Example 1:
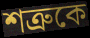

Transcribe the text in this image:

শত্রুকে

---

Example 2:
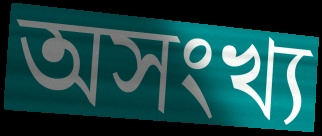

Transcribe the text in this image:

অসংখ্য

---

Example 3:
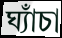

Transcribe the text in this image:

ঘ্যাঁচা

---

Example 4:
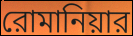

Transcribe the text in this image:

রোমানিয়ার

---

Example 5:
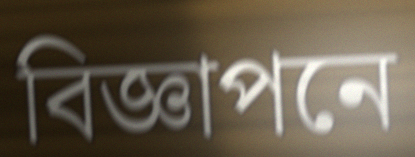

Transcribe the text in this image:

বিজ্ঞাপনে